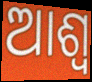
ଆଶ୍ୱ